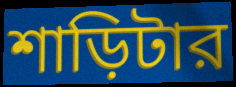
শাড়িটার